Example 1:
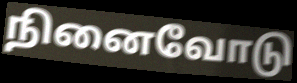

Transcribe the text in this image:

நினைவோடு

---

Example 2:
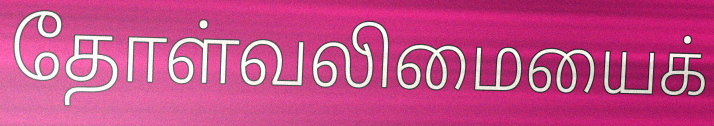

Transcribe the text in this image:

தோள்வலிமையைக்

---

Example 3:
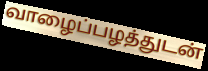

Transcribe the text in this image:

வாழைப்பழத்துடன்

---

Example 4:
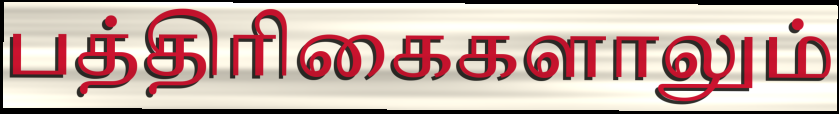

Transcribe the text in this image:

பத்திரிகைகளாலும்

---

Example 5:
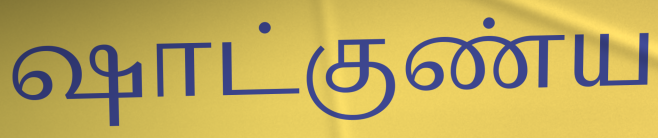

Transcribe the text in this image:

ஷாட்குண்ய